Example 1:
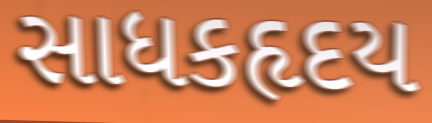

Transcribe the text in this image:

સાધકહૃદય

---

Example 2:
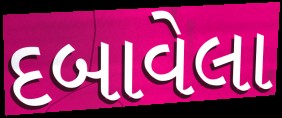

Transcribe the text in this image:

દબાવેલા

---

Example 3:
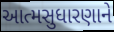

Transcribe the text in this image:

આત્મસુધારણાને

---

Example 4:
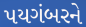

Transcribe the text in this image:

પયગંબરને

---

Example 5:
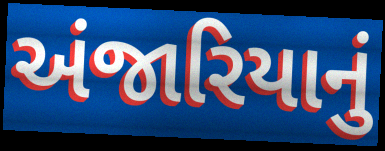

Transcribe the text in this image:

અંજારિયાનું